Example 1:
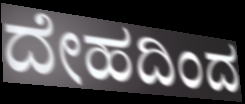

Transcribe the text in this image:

ದೇಹದಿಂದ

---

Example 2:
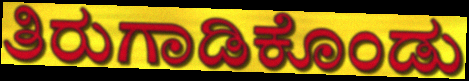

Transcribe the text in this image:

ತಿರುಗಾಡಿಕೊಂಡು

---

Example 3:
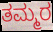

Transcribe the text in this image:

ತಮ್ಮರ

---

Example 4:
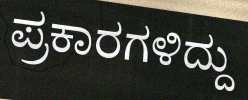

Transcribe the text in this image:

ಪ್ರಕಾರಗಳಿದ್ದು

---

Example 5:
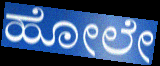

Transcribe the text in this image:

ಹೋಲೇ